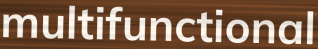
multifunctional